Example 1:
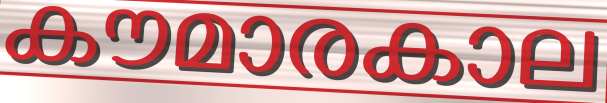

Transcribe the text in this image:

കൗമാരകാല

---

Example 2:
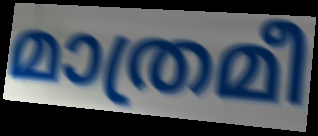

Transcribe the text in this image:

മാത്രമീ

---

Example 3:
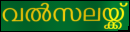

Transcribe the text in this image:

വൽസലയ്ക്ക്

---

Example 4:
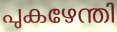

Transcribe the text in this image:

പുകഴേന്തി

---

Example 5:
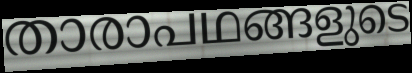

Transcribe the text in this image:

താരാപഥങ്ങളുടെ